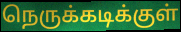
நெருக்கடிக்குள்